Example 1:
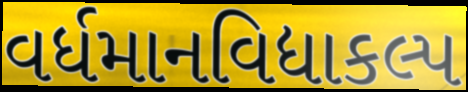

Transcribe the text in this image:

વર્ધમાનવિદ્યાકલ્પ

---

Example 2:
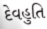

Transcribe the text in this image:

દેવહુતિ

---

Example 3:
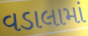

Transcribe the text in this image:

વડાલામાં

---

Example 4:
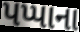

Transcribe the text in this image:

પપ્પાના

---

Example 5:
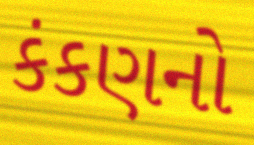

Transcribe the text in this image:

કંકણનો